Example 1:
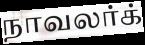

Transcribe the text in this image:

நாவலர்க்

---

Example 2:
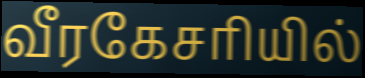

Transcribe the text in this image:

வீரகேசரியில்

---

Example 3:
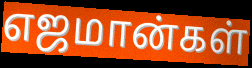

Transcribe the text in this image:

எஜமான்கள்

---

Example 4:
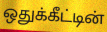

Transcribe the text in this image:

ஒதுக்கீட்டின்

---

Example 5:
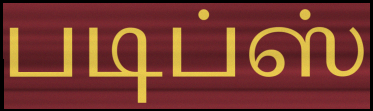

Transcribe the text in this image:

படிப்ஸ்